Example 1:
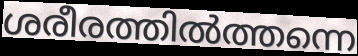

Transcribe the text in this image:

ശരീരത്തിൽത്തന്നെ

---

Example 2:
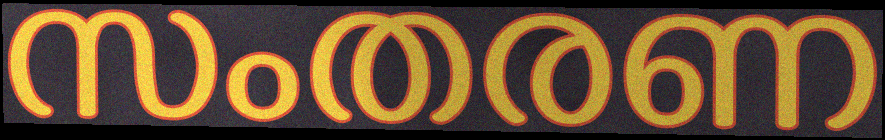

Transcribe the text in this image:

സംതരണ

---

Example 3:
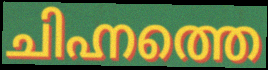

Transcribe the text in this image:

ചിഹ്നത്തെ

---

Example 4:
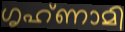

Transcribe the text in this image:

ഗൃഹ്ണാമി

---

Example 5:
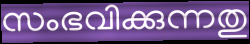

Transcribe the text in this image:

സംഭവിക്കുന്നതു